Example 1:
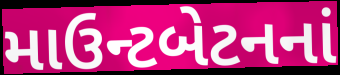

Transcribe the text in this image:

માઉન્ટબેટનનાં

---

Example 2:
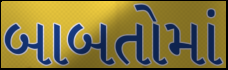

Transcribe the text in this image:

બાબતોમાં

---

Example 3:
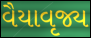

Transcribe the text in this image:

વૈયાવૃજ્ય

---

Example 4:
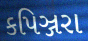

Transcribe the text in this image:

કપિઞ્જરા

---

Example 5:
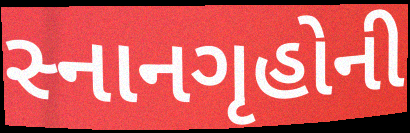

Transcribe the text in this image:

સ્નાનગૃહોની